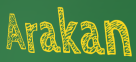
Arakan